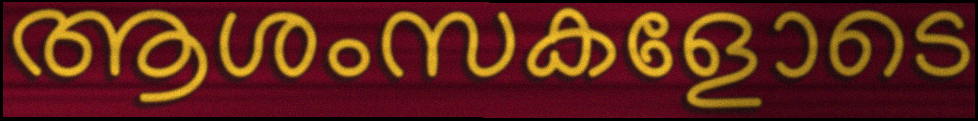
ആശംസകളോടെ